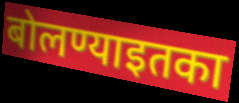
बोलण्याइतका